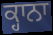
ਕ੍ਹਾਨਾ